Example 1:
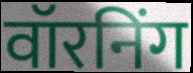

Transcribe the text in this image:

वॉरनिंग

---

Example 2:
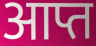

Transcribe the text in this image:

आप्त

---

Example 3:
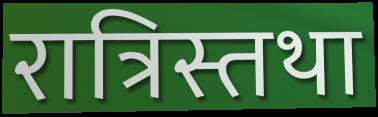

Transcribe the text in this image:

रात्रिस्तथा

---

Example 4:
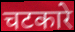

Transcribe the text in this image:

चटकारे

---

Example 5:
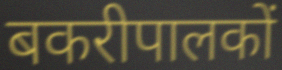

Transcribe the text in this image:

बकरीपालकों